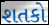
શતકો